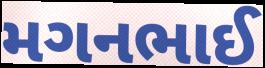
મગનભાઈ